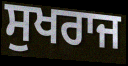
ਸੁਖਰਾਜ